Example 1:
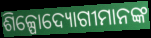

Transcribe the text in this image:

ଶିଳ୍ପୋଦ୍ୟୋଗୀମାନଙ୍କ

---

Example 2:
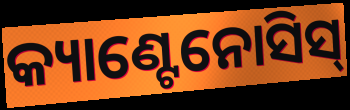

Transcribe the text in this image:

କ୍ୟାଣ୍ଟେନୋସିସ୍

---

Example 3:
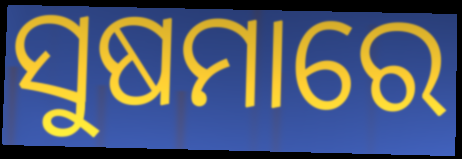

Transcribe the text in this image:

ସୁଷମାରେ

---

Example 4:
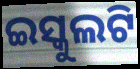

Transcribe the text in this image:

ଇସ୍କୁଲଟି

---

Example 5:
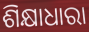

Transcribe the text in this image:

ଶିକ୍ଷାଧାରା